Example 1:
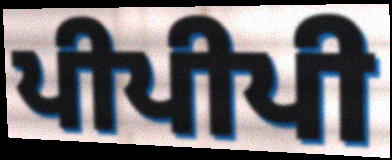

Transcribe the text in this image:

ਪੀਪੀਪੀ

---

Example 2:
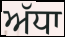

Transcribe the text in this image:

ਅੱਧਾ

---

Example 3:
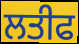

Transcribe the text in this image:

ਲਤੀਫ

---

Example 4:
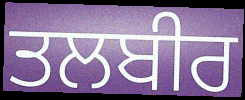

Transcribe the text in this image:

ਤਲਬੀਰ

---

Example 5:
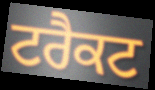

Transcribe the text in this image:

ਟਰੈਕਟ